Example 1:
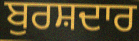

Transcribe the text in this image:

ਬੁਰਸ਼ਦਾਰ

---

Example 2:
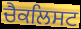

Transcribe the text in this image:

ਚੈਕਲਿਸਟ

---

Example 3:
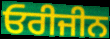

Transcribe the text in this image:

ਓਰੀਜੀਨ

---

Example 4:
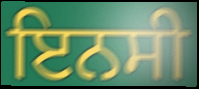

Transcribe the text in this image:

ਇਨਸੀ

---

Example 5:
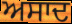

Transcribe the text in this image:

ਅਸਾਦ